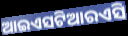
ଆଇଏସଟିଆରଏସି